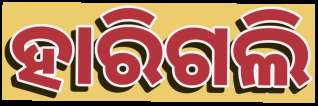
ହାରିଗଲି